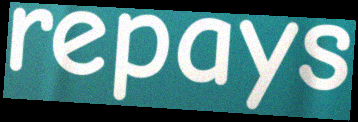
repays